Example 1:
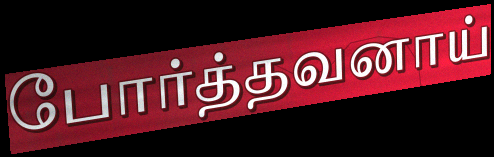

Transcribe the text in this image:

போர்த்தவனாய்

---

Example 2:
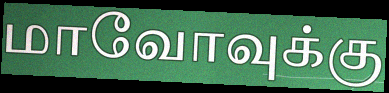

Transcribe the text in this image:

மாவோவுக்கு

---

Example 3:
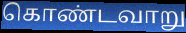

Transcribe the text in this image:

கொண்டவாறு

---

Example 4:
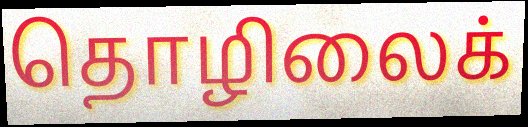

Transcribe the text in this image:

தொழிலைக்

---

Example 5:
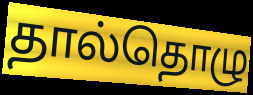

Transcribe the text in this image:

தால்தொழு